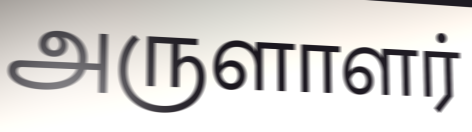
அருளாளர்